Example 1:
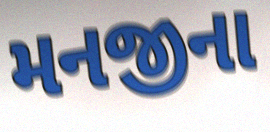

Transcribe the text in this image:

મનજીના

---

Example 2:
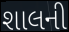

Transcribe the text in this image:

શાલની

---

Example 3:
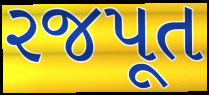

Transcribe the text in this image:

રજપૂત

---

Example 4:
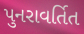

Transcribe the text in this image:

પુનરાવર્તિત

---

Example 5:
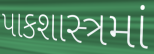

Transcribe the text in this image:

પાકશાસ્ત્રમાં